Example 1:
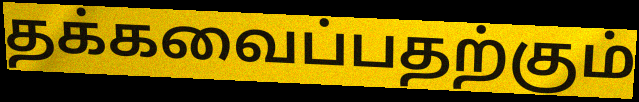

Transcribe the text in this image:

தக்கவைப்பதற்கும்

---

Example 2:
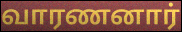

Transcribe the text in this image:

வாரணனார்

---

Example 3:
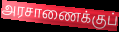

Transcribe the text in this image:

அரசாணைக்குப்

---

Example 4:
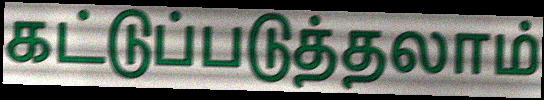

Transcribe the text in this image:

கட்டுப்படுத்தலாம்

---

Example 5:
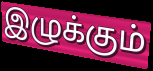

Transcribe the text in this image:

இழுக்கும்